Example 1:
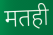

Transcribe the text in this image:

मतही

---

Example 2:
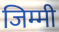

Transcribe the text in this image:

जिम्मी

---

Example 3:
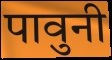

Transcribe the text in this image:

पावुनी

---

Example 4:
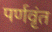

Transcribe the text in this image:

पर्णवृंत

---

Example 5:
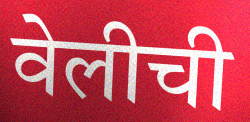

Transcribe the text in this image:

वेलीची